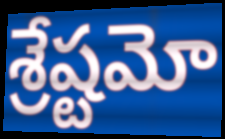
శ్రేష్టమో